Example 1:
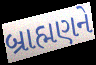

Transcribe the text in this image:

બ્રાહ્મણને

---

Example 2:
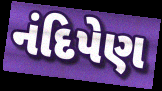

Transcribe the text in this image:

નંદિપેણ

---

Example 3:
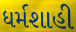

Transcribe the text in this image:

ધર્મશાહી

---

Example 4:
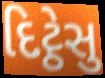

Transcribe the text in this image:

દિટ્ઠેસુ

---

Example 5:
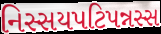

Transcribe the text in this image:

નિસ્સયપટિપન્નસ્સ